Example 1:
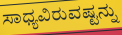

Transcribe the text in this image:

ಸಾಧ್ಯವಿರುವಷ್ಟನ್ನು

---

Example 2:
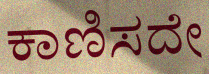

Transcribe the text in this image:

ಕಾಣಿಸದೇ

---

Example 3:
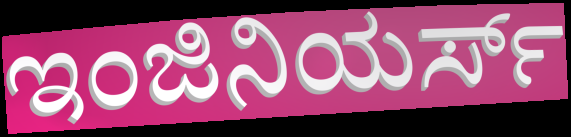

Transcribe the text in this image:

ಇಂಜಿನಿಯರ್ಸ್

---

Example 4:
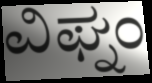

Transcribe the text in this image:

ವಿಘ್ನಂ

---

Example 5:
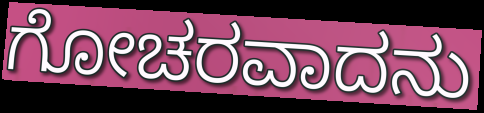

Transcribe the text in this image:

ಗೋಚರವಾದನು